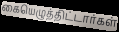
கையெழுத்திட்டார்கள்